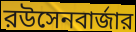
রউসেনবার্জার